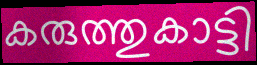
കരുത്തുകാട്ടി